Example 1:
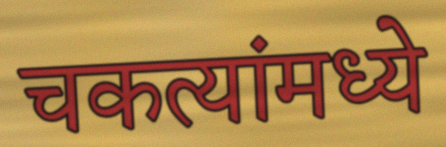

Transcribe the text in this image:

चकत्यांमध्ये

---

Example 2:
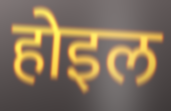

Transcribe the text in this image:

होइल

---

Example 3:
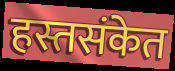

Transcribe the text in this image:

हस्तसंकेत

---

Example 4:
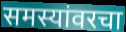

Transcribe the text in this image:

समस्यांवरचा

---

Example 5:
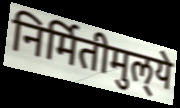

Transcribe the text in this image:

निर्मितीमुल्ये